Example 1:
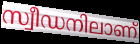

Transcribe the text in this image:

സ്വീഡനിലാണ്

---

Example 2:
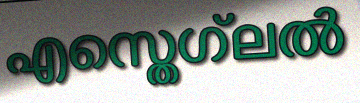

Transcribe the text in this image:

എസ്തെഗ്‌ലൽ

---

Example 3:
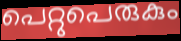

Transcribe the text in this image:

പെറ്റുപെരുകും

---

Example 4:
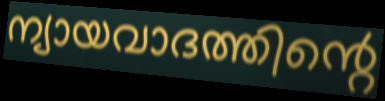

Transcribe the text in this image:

ന്യായവാദത്തിന്റെ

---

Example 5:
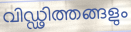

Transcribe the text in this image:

വിഡ്ഢിത്തങ്ങളും